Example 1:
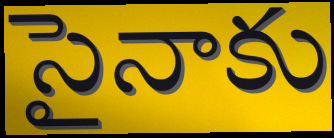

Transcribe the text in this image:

సైనాకు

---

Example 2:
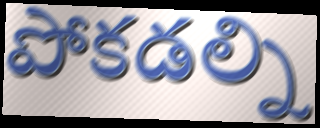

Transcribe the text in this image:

పోకడల్ని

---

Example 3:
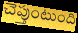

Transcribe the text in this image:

చెప్తుంటుంది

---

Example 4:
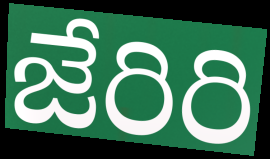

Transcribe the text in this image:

జేరిరి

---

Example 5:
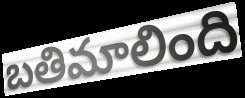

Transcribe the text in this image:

బతిమాలింది